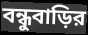
বন্ধুবাড়ির